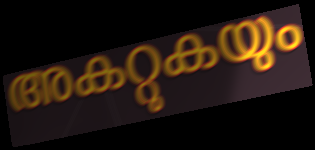
അകറ്റുകയും